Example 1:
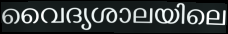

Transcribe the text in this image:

വൈദ്യശാലയിലെ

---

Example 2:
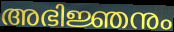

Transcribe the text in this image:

അഭിജ്ഞനും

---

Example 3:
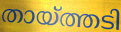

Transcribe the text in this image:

തായ്ത്തടി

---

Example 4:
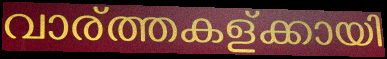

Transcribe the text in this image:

വാര്ത്തകള്ക്കായി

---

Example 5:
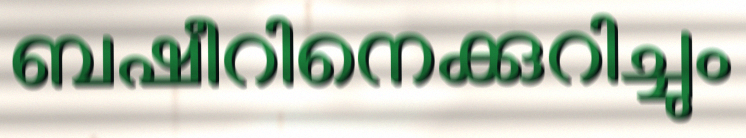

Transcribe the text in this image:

ബഷീറിനെക്കുറിച്ചും